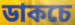
ডাকচে